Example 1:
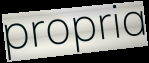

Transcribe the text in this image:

propria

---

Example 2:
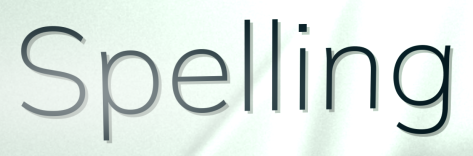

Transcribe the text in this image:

Spelling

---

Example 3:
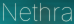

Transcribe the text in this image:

Nethra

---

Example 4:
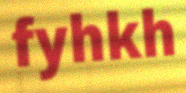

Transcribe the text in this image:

fyhkh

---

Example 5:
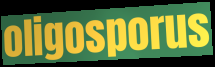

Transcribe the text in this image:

oligosporus